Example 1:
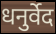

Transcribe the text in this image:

धनुर्वेद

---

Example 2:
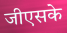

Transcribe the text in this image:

जीएसके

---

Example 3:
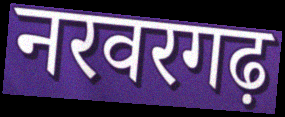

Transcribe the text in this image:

नरवरगढ़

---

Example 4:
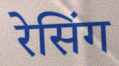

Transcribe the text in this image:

रेसिंग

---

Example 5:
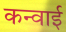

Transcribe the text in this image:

कन्वाई